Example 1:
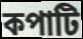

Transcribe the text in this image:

কপাটি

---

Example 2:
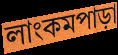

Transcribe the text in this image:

লাংকমপাড়া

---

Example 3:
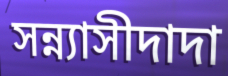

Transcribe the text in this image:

সন্ন্যাসীদাদা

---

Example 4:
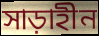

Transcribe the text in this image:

সাড়াহীন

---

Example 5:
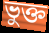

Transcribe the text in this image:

ভুক্ত